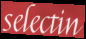
selectin